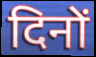
दिनों